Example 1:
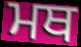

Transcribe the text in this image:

ਮਥ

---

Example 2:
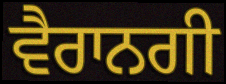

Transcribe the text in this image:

ਵੈਰਾਨਗੀ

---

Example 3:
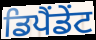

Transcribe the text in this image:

ਡਿਪੈਂਡੇਂਟ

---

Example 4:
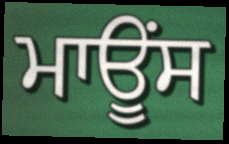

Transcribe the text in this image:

ਮਾਊਂਸ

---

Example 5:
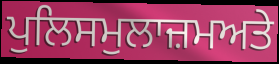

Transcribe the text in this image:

ਪੁਲਿਸਮੁਲਾਜ਼ਮਅਤੇ